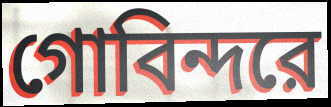
গোবিন্দরে